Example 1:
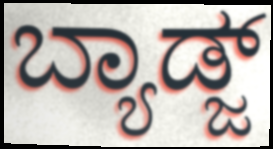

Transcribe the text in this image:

ಬ್ಯಾಡ್ಜ್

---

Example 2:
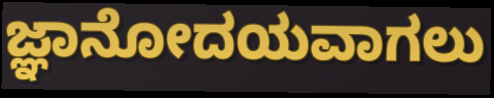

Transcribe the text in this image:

ಜ್ಞಾನೋದಯವಾಗಲು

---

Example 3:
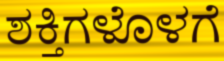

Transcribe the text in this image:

ಶಕ್ತಿಗಳೊಳಗೆ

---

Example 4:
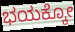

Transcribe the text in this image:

ಭಯಕ್ಕೋ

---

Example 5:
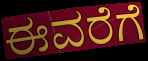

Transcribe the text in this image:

ಈವರೆಗೆ